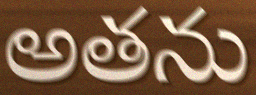
అతను